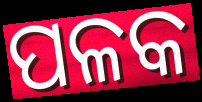
ପଳକ